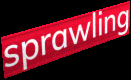
sprawling